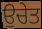
ਉਚੇਤ